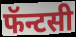
फॅन्टसी